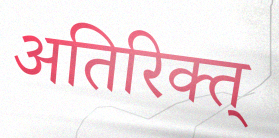
अतिरिक्त्